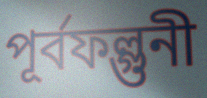
পূর্বফল্গুনী